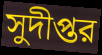
সুদীপ্তর